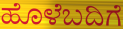
ಹೊಳೆಬದಿಗೆ